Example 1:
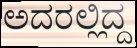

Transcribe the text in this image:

ಅದರಲ್ಲಿದ್ದ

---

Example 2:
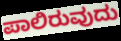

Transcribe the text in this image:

ಪಾಲಿರುವುದು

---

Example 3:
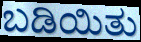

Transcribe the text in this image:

ಬಡಿಯಿತು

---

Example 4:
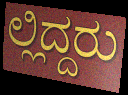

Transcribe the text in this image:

ಲ್ಲಿದ್ದರು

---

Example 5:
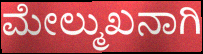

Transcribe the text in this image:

ಮೇಲ್ಮುಖನಾಗಿ